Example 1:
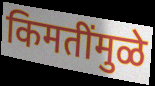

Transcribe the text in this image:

किमतींमुळे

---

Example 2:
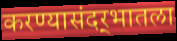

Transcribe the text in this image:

करण्यासंदर्भातला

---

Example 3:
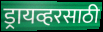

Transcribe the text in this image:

ड्रायव्हरसाठी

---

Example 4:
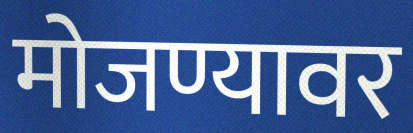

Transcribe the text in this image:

मोजण्यावर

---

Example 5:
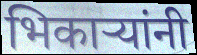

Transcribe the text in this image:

भिकाऱ्यांनी